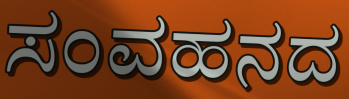
ಸಂವಹನದ